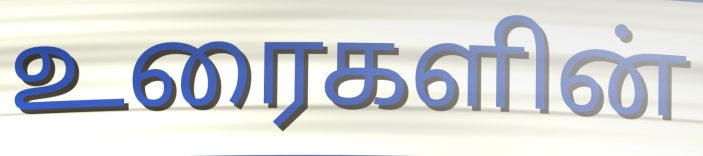
உரைகளின்